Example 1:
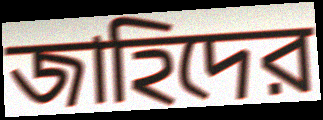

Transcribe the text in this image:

জাহিদের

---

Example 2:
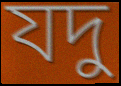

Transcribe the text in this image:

যদু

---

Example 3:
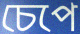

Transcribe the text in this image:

চেপে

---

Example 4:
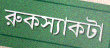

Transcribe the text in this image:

রুকস্যাকটা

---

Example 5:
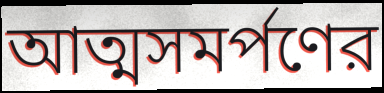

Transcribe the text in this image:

আত্মসমর্পণের